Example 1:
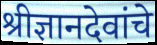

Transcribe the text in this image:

श्रीज्ञानदेवांचे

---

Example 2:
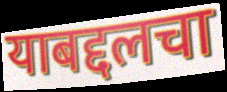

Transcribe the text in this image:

याबद्दलचा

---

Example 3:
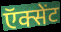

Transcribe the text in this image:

ऍक्सेंट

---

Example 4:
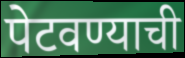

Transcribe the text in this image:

पेटवण्याची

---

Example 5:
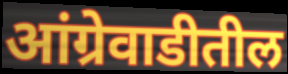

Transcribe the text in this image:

आंग्रेवाडीतील